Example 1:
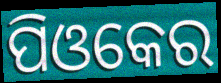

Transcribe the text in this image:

ପିଓକେର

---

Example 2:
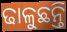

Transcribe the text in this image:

ଢାଳୁଛନ୍ତି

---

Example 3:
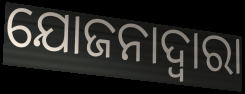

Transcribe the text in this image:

ଯୋଜନାଦ୍ବାରା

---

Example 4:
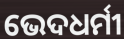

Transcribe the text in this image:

ଭେଦଧର୍ମୀ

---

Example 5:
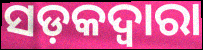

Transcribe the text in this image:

ସଡ଼କଦ୍ୱାରା